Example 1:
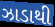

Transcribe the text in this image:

ઝાડાથી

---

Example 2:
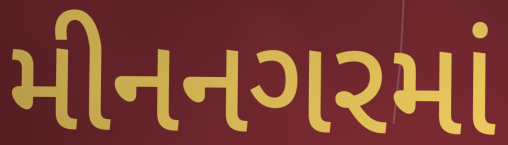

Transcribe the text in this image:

મીનનગરમાં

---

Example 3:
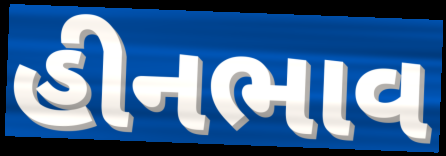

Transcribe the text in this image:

હીનભાવ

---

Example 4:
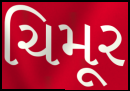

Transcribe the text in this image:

ચિમૂર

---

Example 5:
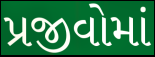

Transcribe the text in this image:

પ્રજીવોમાં